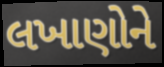
લખાણોને